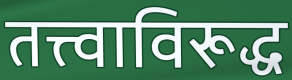
तत्त्वाविरूद्ध